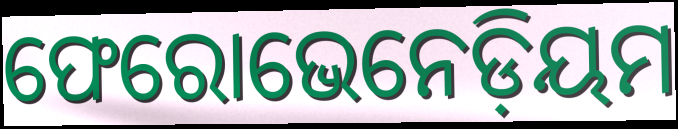
ଫେରୋଭେନେଡ଼ିୟମ